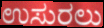
ಉಸುರಲು